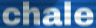
chale